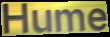
Hume